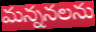
మన్ననలను